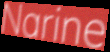
Narine